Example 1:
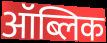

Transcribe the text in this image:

ऑब्लिक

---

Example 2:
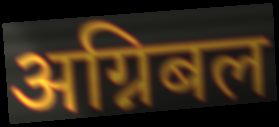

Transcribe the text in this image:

अग्निबल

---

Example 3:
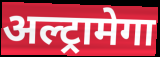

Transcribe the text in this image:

अल्ट्रामेगा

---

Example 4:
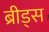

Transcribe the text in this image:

ब्रीड्स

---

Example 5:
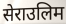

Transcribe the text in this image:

सेराउलिम